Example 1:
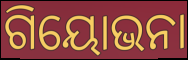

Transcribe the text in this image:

ଗିୟୋଭନା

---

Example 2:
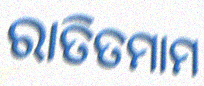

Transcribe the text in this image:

ରାତିତମାମ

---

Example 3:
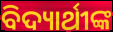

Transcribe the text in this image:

ବିଦ୍ୟାର୍ଥୀଙ୍କ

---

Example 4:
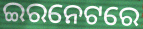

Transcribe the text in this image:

ଇରନେଟରେ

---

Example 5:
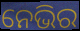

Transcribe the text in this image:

ନେଭିର